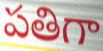
పతిగా